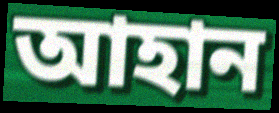
আহান